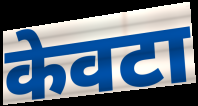
केवटा